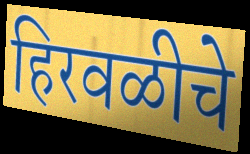
हिरवळीचे